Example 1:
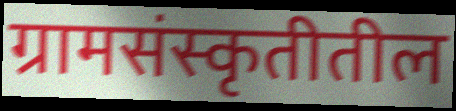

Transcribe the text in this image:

ग्रामसंस्कृतीतील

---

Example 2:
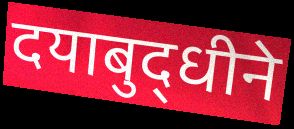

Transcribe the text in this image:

दयाबुद्धीने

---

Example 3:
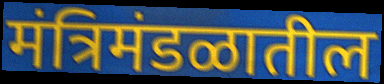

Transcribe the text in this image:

मंत्रिमंडळातील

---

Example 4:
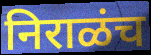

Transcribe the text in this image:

निराळंच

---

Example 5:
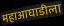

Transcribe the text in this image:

महाआघाडीला